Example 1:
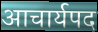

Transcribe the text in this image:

आचार्यपद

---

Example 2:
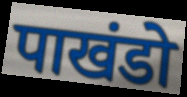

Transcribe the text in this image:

पाखंडो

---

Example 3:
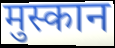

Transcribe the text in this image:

मुस्‍कान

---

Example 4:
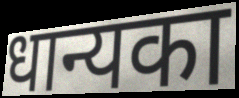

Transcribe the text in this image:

धान्यका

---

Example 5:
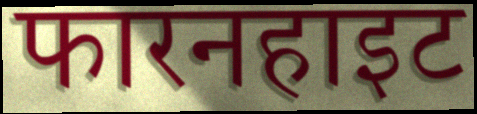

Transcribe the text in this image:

फारनहाइट